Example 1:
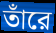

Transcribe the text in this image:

তাঁরে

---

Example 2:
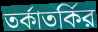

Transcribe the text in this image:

তর্কাতর্কির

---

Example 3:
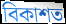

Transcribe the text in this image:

বিকাশত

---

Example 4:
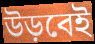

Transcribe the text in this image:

উড়বেই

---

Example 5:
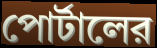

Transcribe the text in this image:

পোর্টালের